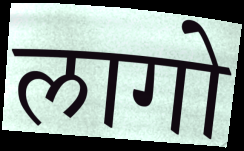
लागो